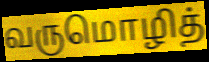
வருமொழித்